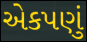
એકપણું